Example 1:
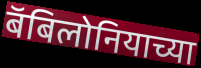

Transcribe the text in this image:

बॅबिलोनियाच्या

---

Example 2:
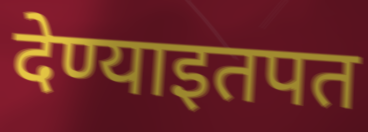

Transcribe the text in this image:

देण्याइतपत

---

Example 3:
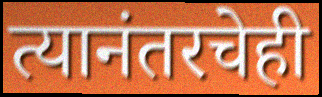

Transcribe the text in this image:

त्यानंतरचेही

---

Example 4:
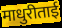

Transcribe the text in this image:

माधुरीताई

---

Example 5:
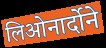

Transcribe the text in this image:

लिओनार्दोने